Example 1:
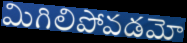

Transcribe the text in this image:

మిగిలిపోవడమో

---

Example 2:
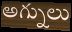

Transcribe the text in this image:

అగ్నులు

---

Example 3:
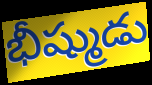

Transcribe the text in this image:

భీష్ముడు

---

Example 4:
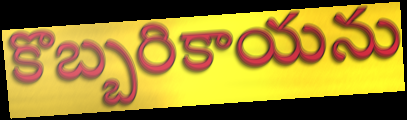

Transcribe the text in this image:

కొబ్బరికాయను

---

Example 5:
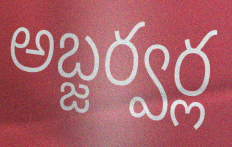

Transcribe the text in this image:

అబ్జర్వర్ల